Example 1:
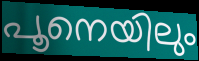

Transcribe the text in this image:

പൂനെയിലും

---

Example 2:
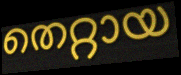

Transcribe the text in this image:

തെറ്റായ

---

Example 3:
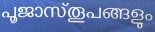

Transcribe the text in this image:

പൂജാസ്‌തൂപങ്ങളും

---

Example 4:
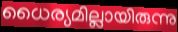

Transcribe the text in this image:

ധൈര്യമില്ലായിരുന്നു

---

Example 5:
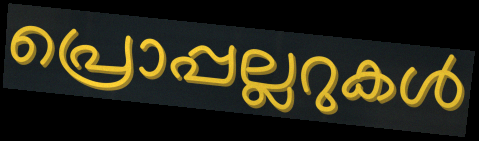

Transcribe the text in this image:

പ്രൊപ്പല്ലറുകൾ